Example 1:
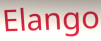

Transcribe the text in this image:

Elango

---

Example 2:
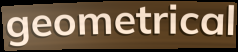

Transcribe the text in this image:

geometrical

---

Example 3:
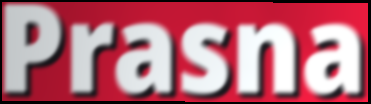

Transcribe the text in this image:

Prasna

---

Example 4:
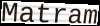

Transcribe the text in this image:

Matram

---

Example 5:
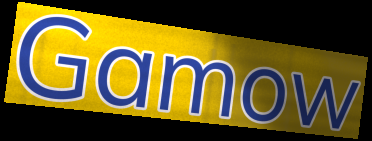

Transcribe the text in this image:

Gamow